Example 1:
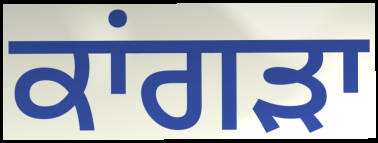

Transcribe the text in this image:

ਕਾਂਗੜਾ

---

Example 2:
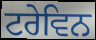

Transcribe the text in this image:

ਟਰੇਵਿਨ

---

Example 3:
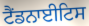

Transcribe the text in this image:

ਟੈਂਡਨਾਈਟਿਸ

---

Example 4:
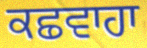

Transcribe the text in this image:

ਕਛਵਾਹਾ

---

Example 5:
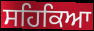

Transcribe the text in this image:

ਸਹਿਕਿਆ